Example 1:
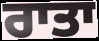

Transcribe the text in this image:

ਰਾਤਾ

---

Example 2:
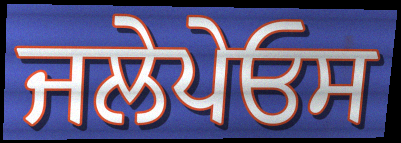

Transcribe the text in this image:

ਜਲੇਪੇਓਸ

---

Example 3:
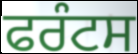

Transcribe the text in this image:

ਫਰੰਟਸ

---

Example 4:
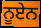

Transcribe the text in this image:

ਨੂਏਨ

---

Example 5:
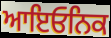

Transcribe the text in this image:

ਆਇਓਨਿਕ